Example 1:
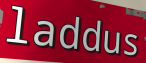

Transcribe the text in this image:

laddus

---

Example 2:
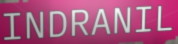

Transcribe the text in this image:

INDRANIL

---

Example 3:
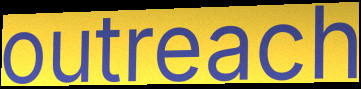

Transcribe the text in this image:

outreach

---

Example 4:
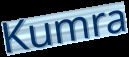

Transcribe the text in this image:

Kumra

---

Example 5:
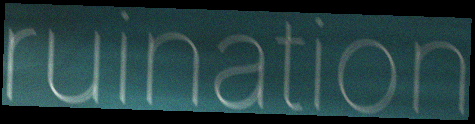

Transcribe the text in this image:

ruination